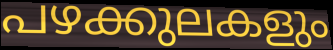
പഴക്കുലകളും